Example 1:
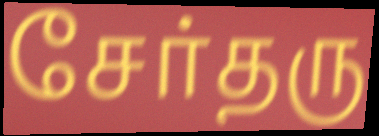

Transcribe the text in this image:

சேர்தரு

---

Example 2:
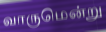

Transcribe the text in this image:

வாருமென்று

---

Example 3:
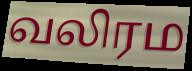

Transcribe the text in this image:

வலிரம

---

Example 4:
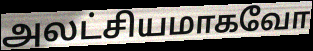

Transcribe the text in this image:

அலட்சியமாகவோ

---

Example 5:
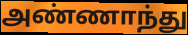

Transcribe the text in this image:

அண்ணாந்து